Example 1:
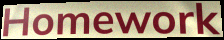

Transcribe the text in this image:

Homework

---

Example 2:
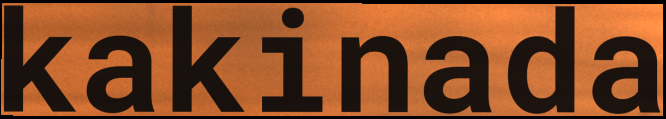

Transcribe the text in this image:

kakinada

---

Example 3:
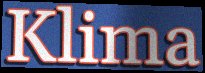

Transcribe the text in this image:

Klima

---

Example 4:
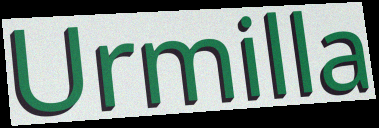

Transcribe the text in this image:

Urmilla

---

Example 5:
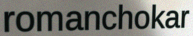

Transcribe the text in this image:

romanchokar